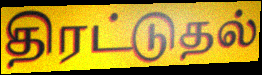
திரட்டுதல்